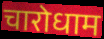
चारोधाम